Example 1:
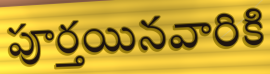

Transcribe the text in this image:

పూర్తయినవారికి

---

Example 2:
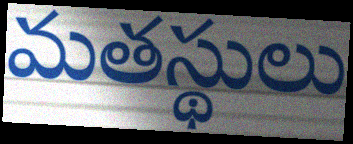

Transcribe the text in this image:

మతస్థులు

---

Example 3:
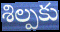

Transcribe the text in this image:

శిల్పకు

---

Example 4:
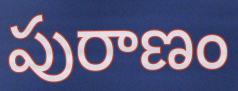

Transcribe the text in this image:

పురాణం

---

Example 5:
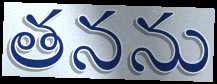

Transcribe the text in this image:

తనను